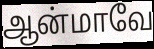
ஆன்மாவே